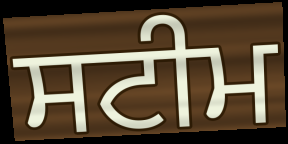
ਸਟੀਮ